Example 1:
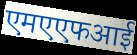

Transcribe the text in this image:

एमएएफआई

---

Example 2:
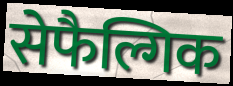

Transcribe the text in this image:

सेफैल्गिक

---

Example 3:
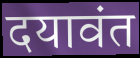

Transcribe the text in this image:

दयावंत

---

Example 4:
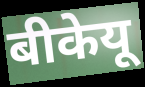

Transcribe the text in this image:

बीकेयू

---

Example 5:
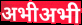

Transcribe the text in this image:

अभीअभी